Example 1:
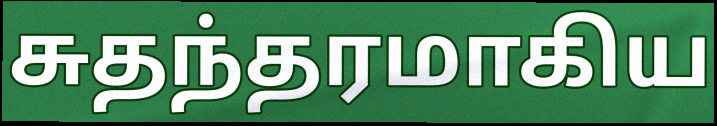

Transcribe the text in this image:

சுதந்தரமாகிய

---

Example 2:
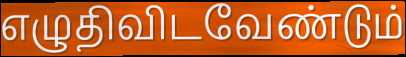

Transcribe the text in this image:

எழுதிவிடவேண்டும்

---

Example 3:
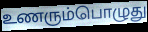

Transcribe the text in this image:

உணரும்பொழுது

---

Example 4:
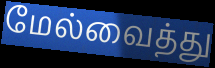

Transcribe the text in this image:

மேல்வைத்து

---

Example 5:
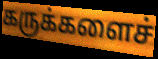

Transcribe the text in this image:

கருக்களைச்